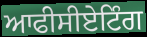
ਆਫੀਸੀਏਟਿੰਗ